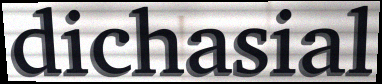
dichasial